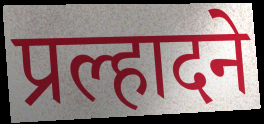
प्रल्हादने